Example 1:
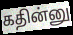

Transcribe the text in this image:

கதின்னு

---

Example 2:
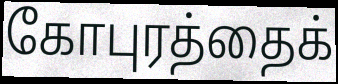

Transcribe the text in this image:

கோபுரத்தைக்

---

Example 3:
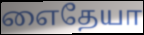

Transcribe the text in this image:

எைதேயா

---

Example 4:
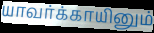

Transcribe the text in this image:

யாவர்க்காயினும்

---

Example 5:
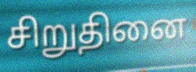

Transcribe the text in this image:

சிறுதினை